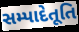
સમ્પાદેતૂતિ